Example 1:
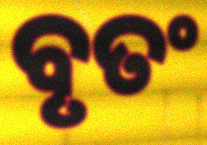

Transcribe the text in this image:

ବୃତଂ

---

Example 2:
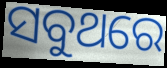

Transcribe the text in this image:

ସବୁଥରେ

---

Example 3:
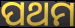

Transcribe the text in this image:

ପଥମ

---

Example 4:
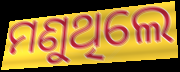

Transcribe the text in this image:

ମଣୁଥିଲେ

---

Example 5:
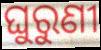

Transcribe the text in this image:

ଘୁରୁଣୀ